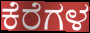
ಕೆರೆಗಳ